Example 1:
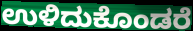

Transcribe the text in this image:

ಉಳಿದುಕೊಂಡರೆ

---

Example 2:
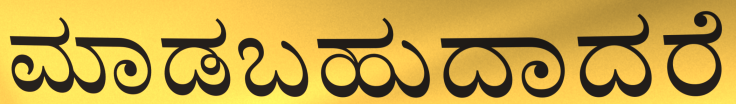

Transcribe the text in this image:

ಮಾಡಬಹುದಾದರೆ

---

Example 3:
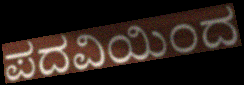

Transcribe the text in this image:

ಪದವಿಯಿಂದ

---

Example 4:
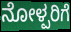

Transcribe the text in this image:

ನೋಳ್ಪರಿಗೆ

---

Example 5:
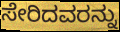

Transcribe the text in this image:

ಸೇರಿದವರನ್ನು